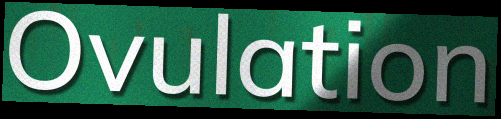
Ovulation